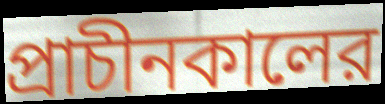
প্রাচীনকালের